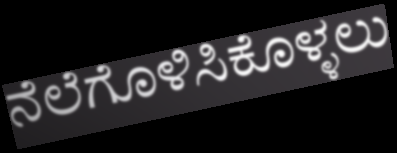
ನೆಲೆಗೊಳಿಸಿಕೊಳ್ಳಲು